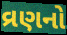
વ્રણનો